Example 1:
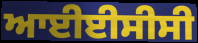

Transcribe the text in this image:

ਆਈਈਸੀਸੀ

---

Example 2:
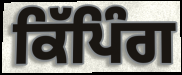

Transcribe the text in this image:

ਕਿੱਪਿੰਗ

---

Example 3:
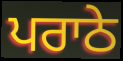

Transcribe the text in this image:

ਪਰਾਠੇ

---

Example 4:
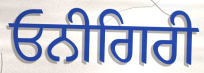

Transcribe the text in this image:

ਓਨੀਗਿਰੀ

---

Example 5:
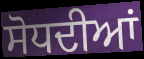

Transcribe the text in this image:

ਸੋਧਦੀਆਂ